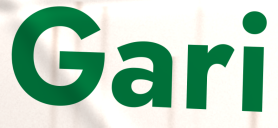
Gari